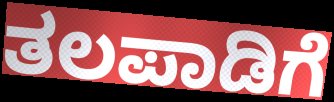
ತಲಪಾಡಿಗೆ